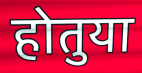
होतुया